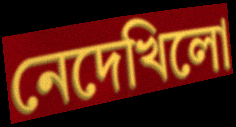
নেদেখিলো